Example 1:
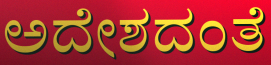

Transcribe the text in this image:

ಅದೇಶದಂತೆ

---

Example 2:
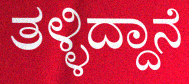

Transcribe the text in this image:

ತಳ್ಳಿದ್ದಾನೆ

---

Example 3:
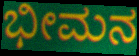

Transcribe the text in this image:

ಭೀಮನ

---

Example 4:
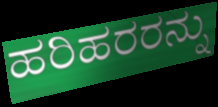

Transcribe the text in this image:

ಹರಿಹರರನ್ನು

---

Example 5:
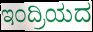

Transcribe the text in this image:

ಇಂದ್ರಿಯದ